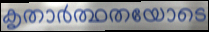
കൃതാർത്ഥതയോടെ